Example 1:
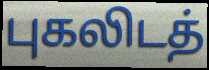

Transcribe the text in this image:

புகலிடத்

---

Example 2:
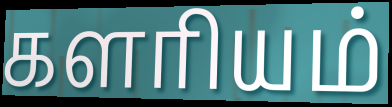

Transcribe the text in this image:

களரியம்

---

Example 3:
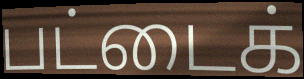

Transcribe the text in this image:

பட்டைக்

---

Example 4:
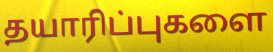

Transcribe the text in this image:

தயாரிப்புகளை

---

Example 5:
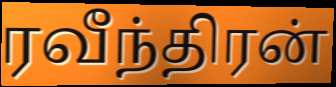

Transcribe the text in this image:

ரவீந்திரன்